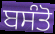
ਬਸੰਤੋ